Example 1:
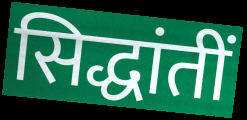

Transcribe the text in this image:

सिद्धांतीं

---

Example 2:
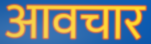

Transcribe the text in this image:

आवचार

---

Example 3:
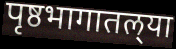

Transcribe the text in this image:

पृष्ठभागातल्या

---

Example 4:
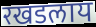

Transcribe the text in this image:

रखडलाय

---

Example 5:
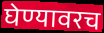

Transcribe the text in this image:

घेण्यावरच